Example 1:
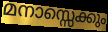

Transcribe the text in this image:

മനാസ്സെക്കും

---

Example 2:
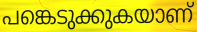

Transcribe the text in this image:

പങ്കെടുക്കുകയാണ്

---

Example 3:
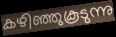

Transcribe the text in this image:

കഴിഞ്ഞുകൂടുന്നു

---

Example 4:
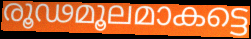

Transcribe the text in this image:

രൂഢമൂലമാകട്ടെ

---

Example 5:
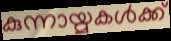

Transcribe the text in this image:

കുന്നായ്മകൾക്ക്